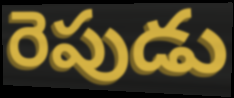
రెపుడు